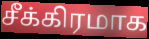
சீக்கிரமாக